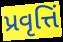
પ્રવૃત્તિં